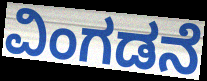
ವಿಂಗಡನೆ